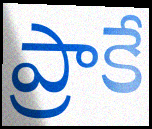
ప్రాకే